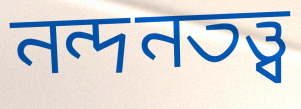
নন্দনতত্ত্ব